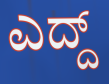
ಎದ್ದ್